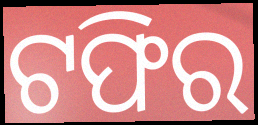
ଟଫିର